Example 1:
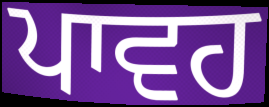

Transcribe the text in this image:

ਪਾਵਹ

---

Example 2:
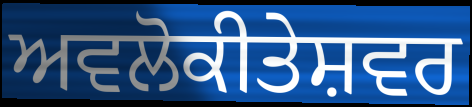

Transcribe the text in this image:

ਅਵਲੋਕੀਤੇਸ਼ਵਰ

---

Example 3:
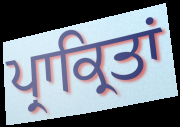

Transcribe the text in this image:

ਪ੍ਰਾਕ੍ਰਿਤਾਂ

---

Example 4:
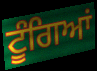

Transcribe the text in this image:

ਟੂੰਗਿਆਂ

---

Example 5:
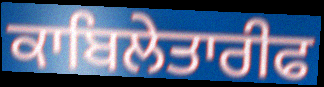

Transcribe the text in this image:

ਕਾਬਿਲੇਤਾਰੀਫ